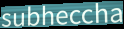
subheccha